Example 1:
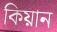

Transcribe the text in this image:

কিয়ান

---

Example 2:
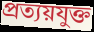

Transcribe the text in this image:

প্রত্যয়যুক্ত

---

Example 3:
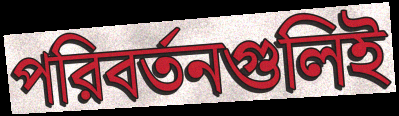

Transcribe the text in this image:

পরিবর্তনগুলিই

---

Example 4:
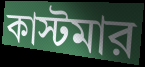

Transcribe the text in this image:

কাস্টমার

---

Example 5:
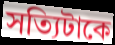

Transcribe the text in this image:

সত্যিটাকে